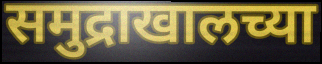
समुद्राखालच्या